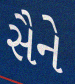
સૈને